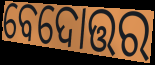
ବେଦୋତ୍ତର